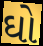
ઘો